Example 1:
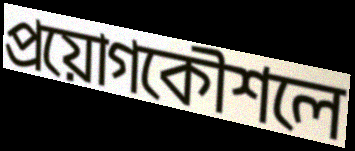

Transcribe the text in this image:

প্রয়োগকৌশলে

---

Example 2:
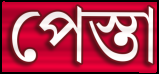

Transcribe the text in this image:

পেস্তা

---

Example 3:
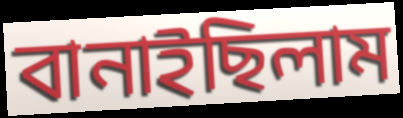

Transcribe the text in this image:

বানাইছিলাম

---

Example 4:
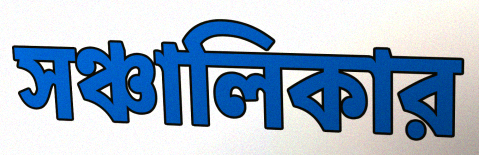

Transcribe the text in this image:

সঞ্চালিকার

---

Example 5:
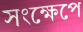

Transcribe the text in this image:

সংক্ষেপে